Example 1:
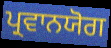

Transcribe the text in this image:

ਪ੍ਰਵਾਨਯੋਗ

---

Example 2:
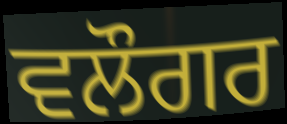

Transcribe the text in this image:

ਵਲੌਗਰ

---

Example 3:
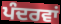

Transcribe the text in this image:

ਪੰਦਰਵਾਂ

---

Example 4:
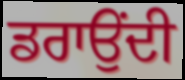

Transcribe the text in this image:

ਡਰਾਉਂਦੀ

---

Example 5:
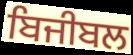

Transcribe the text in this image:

ਬਿਜੀਬਲ